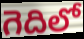
గెదిలో